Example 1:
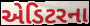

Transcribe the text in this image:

એડિટરના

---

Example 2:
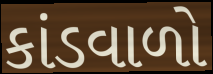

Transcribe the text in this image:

કાંડવાળો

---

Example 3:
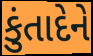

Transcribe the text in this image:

કુંતાદેને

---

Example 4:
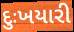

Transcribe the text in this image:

દુઃખયારી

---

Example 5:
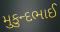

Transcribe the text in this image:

મુકુન્દભાઈ